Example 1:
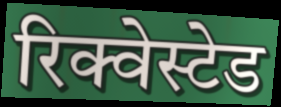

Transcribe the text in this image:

रिक्वेस्टेड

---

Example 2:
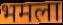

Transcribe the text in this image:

भमला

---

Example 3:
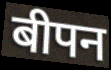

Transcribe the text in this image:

बीपन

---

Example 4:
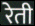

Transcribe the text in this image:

रेती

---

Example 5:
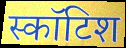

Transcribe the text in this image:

स्कॉटिश